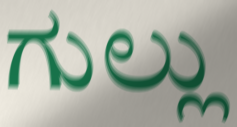
ಗುಲ್ಲು